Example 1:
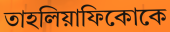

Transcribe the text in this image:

তাহলিয়াফিকোকে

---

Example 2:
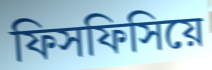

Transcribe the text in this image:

ফিসফিসিয়ে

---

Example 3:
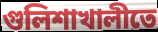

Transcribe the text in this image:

গুলিশাখালীতে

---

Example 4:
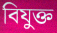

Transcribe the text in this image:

বিযুক্ত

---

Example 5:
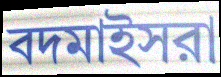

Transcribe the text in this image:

বদমাইসরা